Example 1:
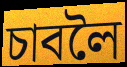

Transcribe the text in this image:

চাবলৈ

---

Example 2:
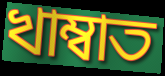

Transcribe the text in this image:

খাম্বাত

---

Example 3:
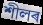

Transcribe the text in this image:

শীলৰ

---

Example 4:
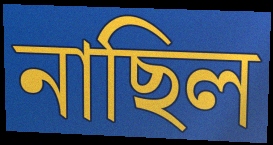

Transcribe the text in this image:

নাছিল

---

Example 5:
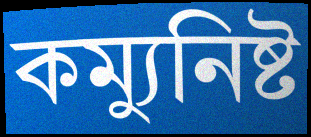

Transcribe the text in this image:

কম্যুনিষ্ট